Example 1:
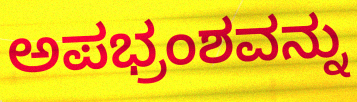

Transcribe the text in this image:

ಅಪಭ್ರಂಶವನ್ನು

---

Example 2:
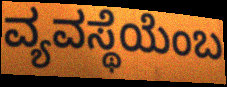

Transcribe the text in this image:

ವ್ಯವಸ್ಥೆಯೆಂಬ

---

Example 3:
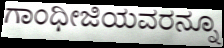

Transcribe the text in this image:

ಗಾಂಧೀಜಿಯವರನ್ನೂ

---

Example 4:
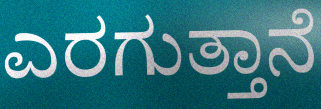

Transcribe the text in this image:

ಎರಗುತ್ತಾನೆ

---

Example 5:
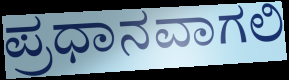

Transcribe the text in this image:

ಪ್ರಧಾನವಾಗಲಿ